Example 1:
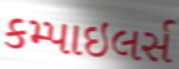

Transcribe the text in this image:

કમ્પાઇલર્સ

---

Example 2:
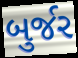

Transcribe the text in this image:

બુર્જર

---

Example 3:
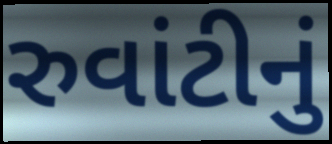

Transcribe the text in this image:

રુવાંટીનું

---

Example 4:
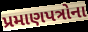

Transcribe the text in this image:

પ્રમાણપત્રોના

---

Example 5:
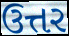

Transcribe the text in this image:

ઉત્તર